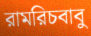
রামরিচবাবু